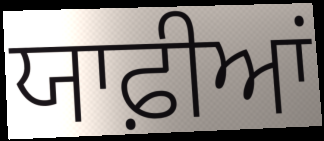
ਯਾਫ਼ੀਆਂ